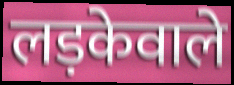
लड़केवाले